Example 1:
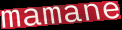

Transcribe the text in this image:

mamane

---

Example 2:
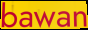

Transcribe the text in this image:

bawan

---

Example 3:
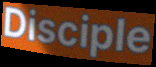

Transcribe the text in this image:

Disciple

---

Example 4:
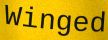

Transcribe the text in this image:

Winged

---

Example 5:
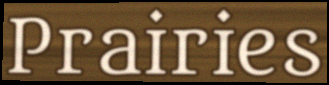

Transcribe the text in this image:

Prairies